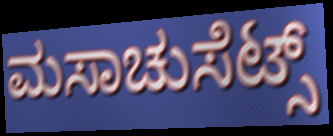
ಮಸಾಚುಸೆಟ್ಸ್